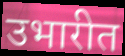
उभारीत